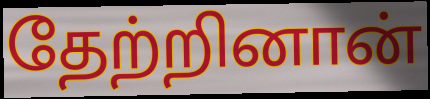
தேற்றினான்